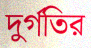
দুর্গতির